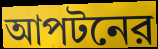
আপটনের